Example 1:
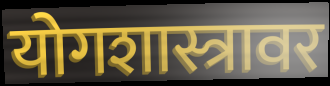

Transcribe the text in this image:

योगशास्त्रावर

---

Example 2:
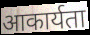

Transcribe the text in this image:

आकार्यता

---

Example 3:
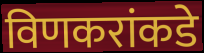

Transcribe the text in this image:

विणकरांकडे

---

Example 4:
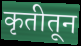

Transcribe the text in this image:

कृतीतून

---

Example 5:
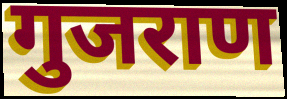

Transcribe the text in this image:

गुजराण